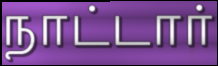
நாட்டார்